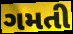
ગમતી